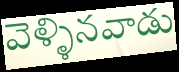
వెళ్ళినవాడు